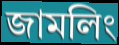
জামলিং